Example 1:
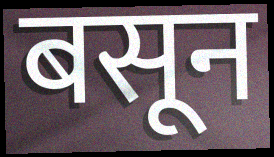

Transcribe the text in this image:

बसून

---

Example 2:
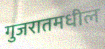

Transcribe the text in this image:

गुजरातमधील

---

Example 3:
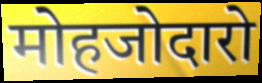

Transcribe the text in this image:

मोहजोदारो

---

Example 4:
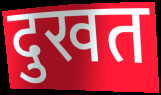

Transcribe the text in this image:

दुखत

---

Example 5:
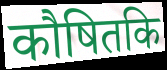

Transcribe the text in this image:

कौषितकि